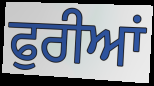
ਫੁਰੀਆਂ